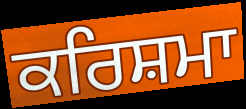
ਕਰਿਸ਼ਮਾ